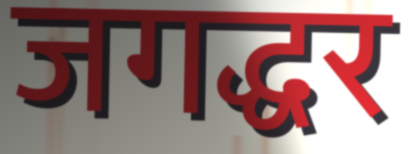
जगद्धर